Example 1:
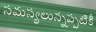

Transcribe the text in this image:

సమస్యలున్నప్పటికీ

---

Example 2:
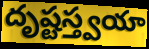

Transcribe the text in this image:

దృష్టస్త్వయా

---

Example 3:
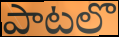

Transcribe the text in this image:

పాటలొ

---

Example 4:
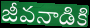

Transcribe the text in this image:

జీవనాడికి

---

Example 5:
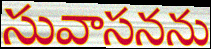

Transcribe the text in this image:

సువాసనను